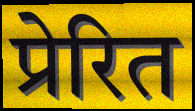
प्रेरित